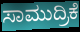
ಸಾಮುದ್ರಿಕೆ